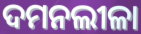
ଦମନଲୀଳା